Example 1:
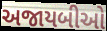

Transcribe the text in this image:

અજાયબીઓ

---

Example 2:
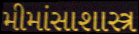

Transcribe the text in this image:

મીમાંસાશાસ્ત્ર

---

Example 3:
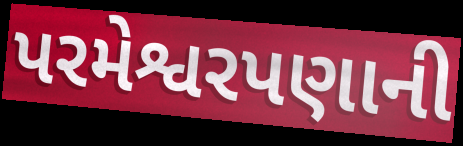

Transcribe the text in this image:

પરમેશ્વરપણાની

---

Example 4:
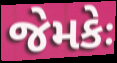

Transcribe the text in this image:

જેમકેઃ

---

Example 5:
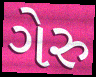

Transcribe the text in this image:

ગેરુ